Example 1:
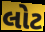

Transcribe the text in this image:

લોટ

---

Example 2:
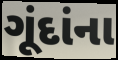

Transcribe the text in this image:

ગૂંદાંના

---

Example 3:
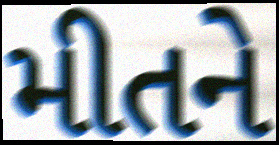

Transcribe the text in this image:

મીતને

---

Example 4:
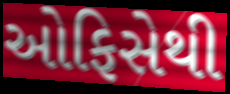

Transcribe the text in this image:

ઓફિસેથી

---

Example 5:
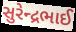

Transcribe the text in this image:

સુરેન્દ્રભાઈ